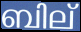
ബില്